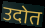
उदोत